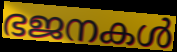
ഭജനകൾ